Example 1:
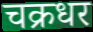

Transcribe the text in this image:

चक्रधर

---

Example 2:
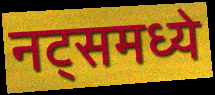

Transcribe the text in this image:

नट्समध्ये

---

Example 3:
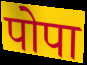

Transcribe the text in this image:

पोपा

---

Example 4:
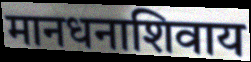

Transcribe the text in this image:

मानधनाशिवाय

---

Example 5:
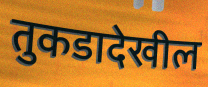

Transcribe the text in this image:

तुकडादेखील